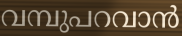
വമ്പുപറവാൻ